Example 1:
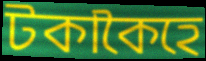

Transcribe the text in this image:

টকাকৈহে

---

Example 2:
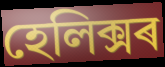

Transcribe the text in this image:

হেলিক্সৰ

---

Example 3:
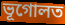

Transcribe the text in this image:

ভূগোলত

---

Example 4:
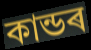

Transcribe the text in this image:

কান্ডৰ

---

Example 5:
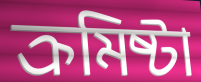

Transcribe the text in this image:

ক্ৰমিষ্টা